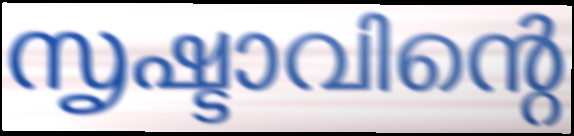
സൃഷ്ടാവിന്റെ